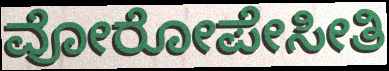
ವೋರೋಪೇಸೀತಿ